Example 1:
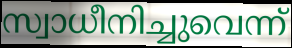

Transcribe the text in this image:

സ്വാധീനിച്ചുവെന്ന്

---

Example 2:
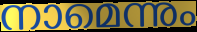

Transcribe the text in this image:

നാമെന്നും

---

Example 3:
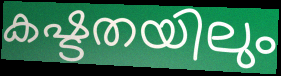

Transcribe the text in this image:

കഷ്ടതയിലും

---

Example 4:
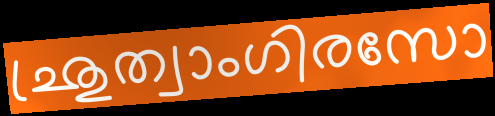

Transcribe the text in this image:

ഛ്രുത്വാംഗിരസോ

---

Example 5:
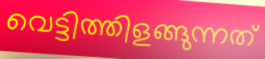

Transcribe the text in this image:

വെട്ടിത്തിളങ്ങുന്നത്